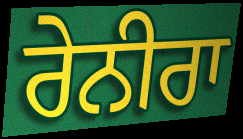
ਰੇਨੀਰਾ